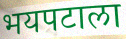
भयपटाला